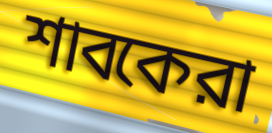
শাবকেরা